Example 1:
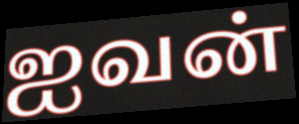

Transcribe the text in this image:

ஐவன்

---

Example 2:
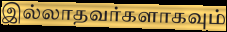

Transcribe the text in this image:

இல்லாதவர்களாகவும்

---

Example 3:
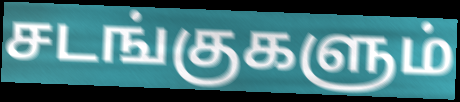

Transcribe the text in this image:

சடங்குகளும்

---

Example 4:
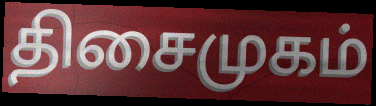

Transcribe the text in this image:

திசைமுகம்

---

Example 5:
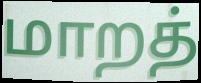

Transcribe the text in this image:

மாறத்